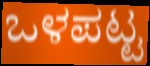
ಒಳಪಟ್ಟ